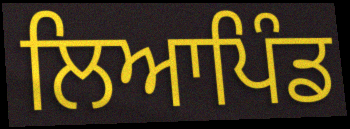
ਲਿਆਪਿੰਡ